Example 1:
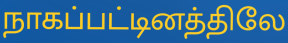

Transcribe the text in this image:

நாகப்பட்டினத்திலே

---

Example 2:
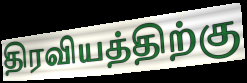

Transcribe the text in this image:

திரவியத்திற்கு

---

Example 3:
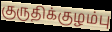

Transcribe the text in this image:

குருதிக்குழம்பு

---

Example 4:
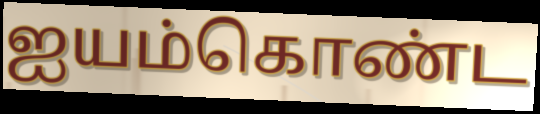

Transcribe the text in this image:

ஐயம்கொண்ட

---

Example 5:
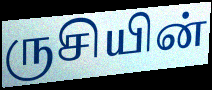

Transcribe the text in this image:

ருசியின்